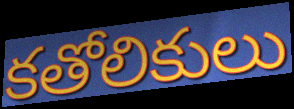
కతోలికులు